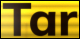
Tar